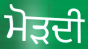
ਮੋੜਦੀ